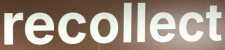
recollect